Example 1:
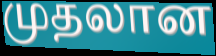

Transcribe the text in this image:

முதலான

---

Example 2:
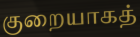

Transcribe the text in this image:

குறையாகத்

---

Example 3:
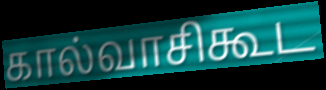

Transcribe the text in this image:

கால்வாசிகூட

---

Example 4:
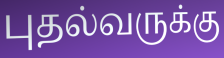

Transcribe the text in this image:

புதல்வருக்கு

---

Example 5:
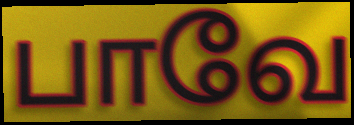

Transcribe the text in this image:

பாவே